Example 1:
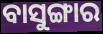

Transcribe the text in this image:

ବାସୁଙ୍ଗାର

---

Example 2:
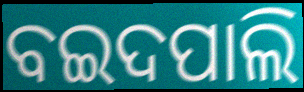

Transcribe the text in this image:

ବଇଦପାଲି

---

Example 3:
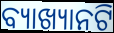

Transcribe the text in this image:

ବ୍ୟାଖ୍ୟାନଟି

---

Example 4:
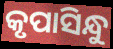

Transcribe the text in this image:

କୃପାସିନ୍ଧୁ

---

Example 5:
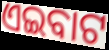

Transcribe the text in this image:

ଏଇବାଟ